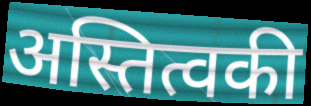
अस्तित्वकी